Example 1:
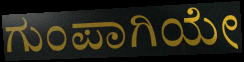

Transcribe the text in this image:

ಗುಂಪಾಗಿಯೇ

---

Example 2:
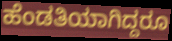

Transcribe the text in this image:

ಹೆಂಡತಿಯಾಗಿದ್ದರೂ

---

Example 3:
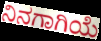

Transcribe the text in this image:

ನಿನಗಾಗಿಯೆ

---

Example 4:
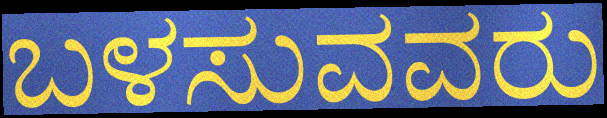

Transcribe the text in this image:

ಬಳಸುವವರು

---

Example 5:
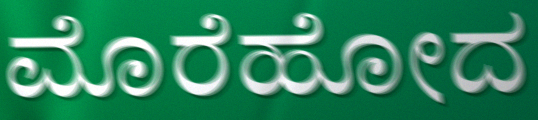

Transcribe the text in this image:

ಮೊರೆಹೋದ